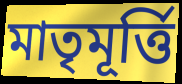
মাতৃমূর্ত্তি